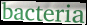
bacteria